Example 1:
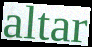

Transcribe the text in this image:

altar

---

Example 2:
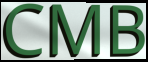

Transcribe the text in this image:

CMB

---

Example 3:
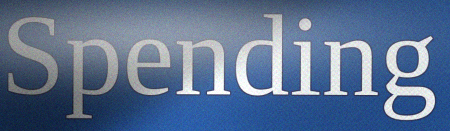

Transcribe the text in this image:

Spending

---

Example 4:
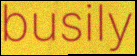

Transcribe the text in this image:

busily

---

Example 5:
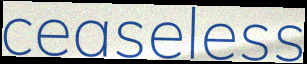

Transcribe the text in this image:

ceaseless